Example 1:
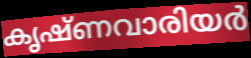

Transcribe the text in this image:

കൃഷ്ണവാരിയർ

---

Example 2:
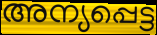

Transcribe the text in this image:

അന്യപ്പെട്ട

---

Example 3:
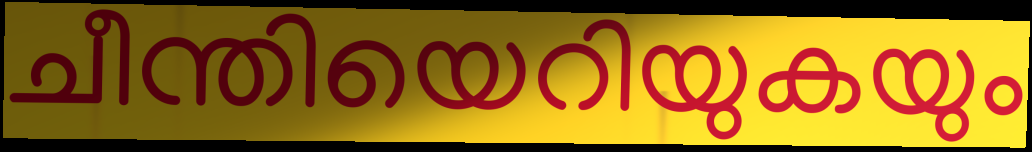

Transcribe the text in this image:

ചീന്തിയെറിയുകയും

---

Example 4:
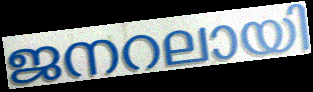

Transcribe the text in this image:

ജനറലായി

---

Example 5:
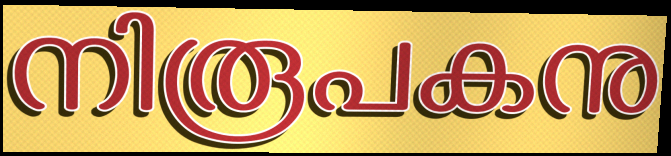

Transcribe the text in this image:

നിരൂപകനു